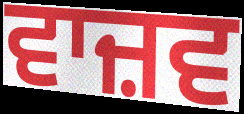
ਵਾਜ਼ਵ